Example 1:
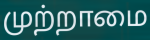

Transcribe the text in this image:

முற்றாமை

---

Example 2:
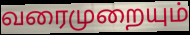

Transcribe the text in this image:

வரைமுறையும்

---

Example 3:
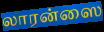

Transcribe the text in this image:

லாரன்ஸை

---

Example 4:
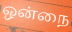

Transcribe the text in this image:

ஒன்நை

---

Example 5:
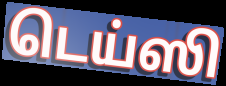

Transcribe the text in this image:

டெய்ஸி